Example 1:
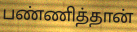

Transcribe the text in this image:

பண்ணித்தான்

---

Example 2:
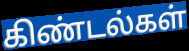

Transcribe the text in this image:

கிண்டல்கள்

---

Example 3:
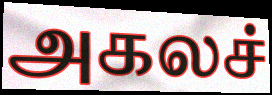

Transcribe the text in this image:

அகலச்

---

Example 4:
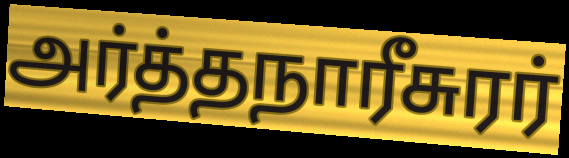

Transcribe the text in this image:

அர்த்தநாரீசுரர்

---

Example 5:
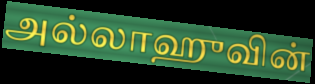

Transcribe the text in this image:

அல்லாஹுவின்